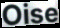
Oise